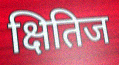
क्षितिज